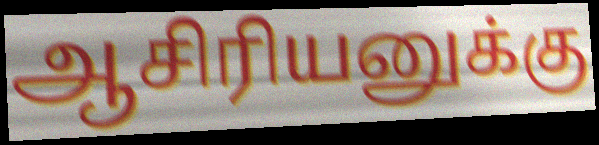
ஆசிரியனுக்கு